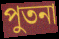
পুতনা